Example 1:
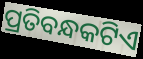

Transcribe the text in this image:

ପ୍ରତିବନ୍ଧକଟିଏ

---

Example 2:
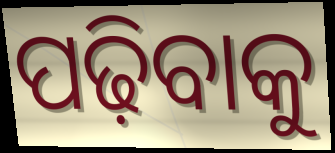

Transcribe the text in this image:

ପଢ଼ିବାକୁ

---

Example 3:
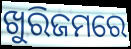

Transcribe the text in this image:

ଖୁରିଜମରେ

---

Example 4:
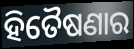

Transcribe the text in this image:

ହିତୈଷଣାର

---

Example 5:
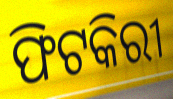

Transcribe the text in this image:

ଫିଟକିରୀ